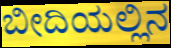
ಬೀದಿಯಲ್ಲಿನ